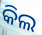
କିଲ